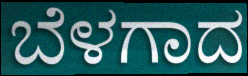
ಬೆಳಗಾದ